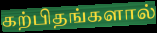
கற்பிதங்களால்